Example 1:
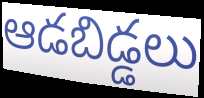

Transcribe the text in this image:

ఆడబిడ్డలు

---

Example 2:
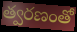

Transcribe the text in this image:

త్వరణంతో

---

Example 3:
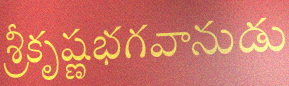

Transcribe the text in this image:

శ్రీకృష్ణభగవానుడు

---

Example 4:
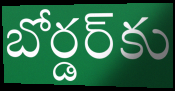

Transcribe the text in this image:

బోర్డర్‌కు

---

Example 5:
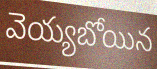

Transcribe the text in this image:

వెయ్యబోయిన